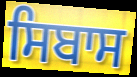
ਸਿਬਾਸ